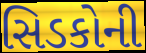
સિડકોની